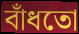
বাঁধতো